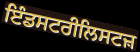
ਇੰਡਸਟਰੀਲਿਸਟਜ਼